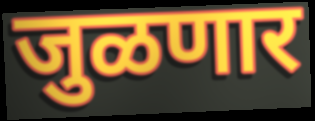
जुळणार